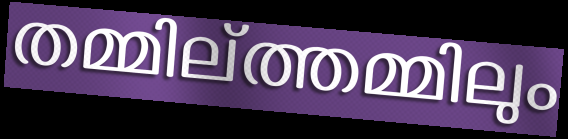
തമ്മില്ത്തമ്മിലും